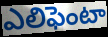
ఎలిఫెంటా